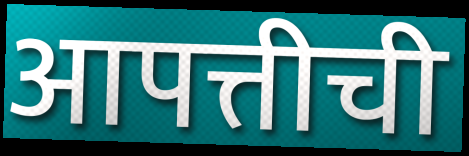
आपत्तीची